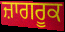
ਜ਼ਾਗਰੂਕ